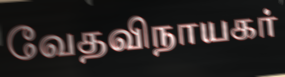
வேதவிநாயகர்